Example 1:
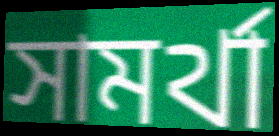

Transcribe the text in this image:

সামর্থা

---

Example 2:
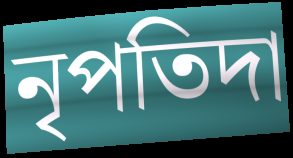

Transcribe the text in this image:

নৃপতিদা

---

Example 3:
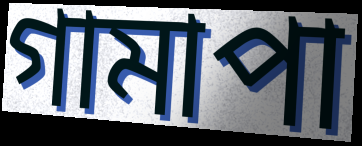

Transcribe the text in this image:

গামাপা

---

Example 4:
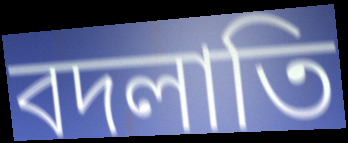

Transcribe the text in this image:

বদলাতি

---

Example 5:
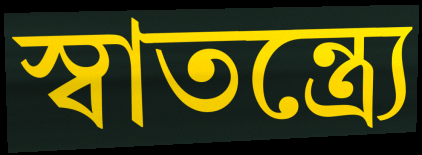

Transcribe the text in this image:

স্বাতন্ত্র্যে